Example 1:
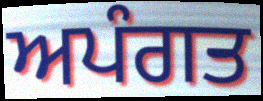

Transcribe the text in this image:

ਅਪੰਗਤ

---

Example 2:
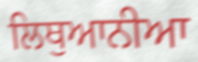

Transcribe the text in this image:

ਲਿਥੁਆਨੀਆ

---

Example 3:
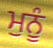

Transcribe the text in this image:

ਮੁਨੂੰ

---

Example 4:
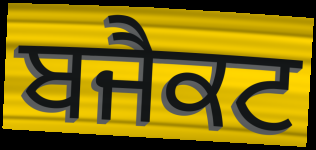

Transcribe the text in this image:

ਬਜੈਕਟ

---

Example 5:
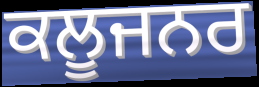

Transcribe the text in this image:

ਕਲੂਜਨਰ